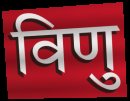
विणु